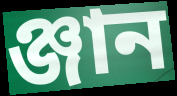
ঞ্জান